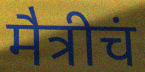
मैत्रीचं